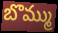
బొమ్ము